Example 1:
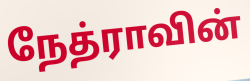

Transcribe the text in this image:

நேத்ராவின்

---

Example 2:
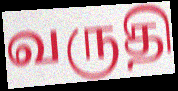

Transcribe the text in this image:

வருதி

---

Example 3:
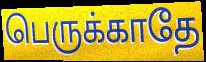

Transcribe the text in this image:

பெருக்காதே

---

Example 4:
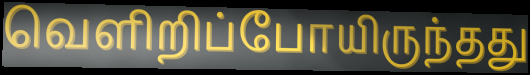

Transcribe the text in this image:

வெளிறிப்போயிருந்தது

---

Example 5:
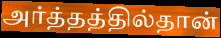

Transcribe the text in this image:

அர்த்தத்தில்தான்